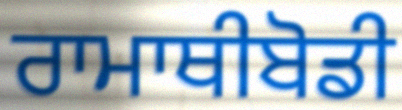
ਰਾਮਾਥੀਬੋਡੀ